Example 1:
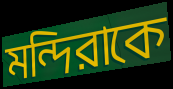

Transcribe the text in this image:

মন্দিরাকে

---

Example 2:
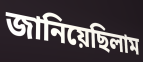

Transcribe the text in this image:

জানিয়েছিলাম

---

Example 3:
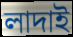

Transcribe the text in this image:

লাদাই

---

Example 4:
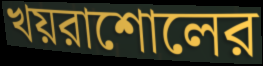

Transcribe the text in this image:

খয়রাশোলের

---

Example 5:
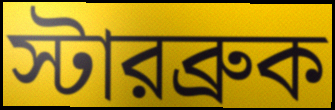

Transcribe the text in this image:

স্টারব্রুক